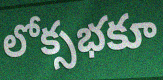
లోక్సభకూ